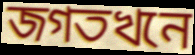
জগতখনে